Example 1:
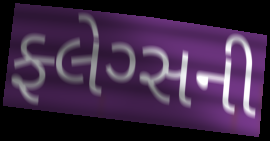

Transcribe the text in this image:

ફ્લેગ્સની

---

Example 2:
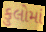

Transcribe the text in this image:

કુલોમાં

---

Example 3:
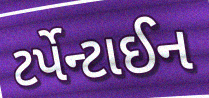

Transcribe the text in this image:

ટર્પેન્ટાઈન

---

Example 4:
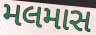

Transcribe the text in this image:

મલમાસ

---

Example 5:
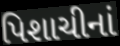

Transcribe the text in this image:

પિશાચીનાં